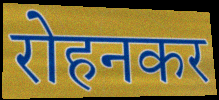
रोहनकर